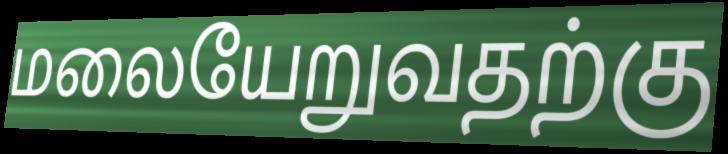
மலையேறுவதற்கு